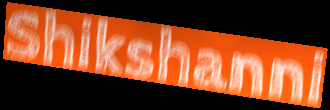
Shikshanni